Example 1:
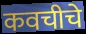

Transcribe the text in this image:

कवचीचे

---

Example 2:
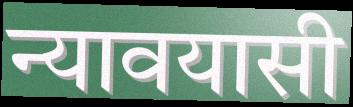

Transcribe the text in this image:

न्यावयासी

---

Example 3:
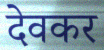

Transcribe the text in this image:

देवकर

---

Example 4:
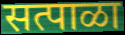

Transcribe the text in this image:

सत्पाळा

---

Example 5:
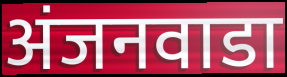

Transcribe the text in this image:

अंजनवाडा